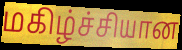
மகிழ்ச்சியான